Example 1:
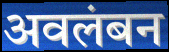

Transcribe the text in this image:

अवलंबन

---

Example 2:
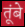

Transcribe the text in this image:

तूंबे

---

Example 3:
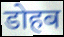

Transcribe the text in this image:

डोहब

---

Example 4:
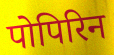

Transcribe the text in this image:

पोपिरिन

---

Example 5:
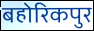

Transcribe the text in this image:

बहोरिकपुर